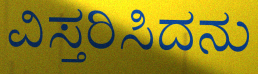
ವಿಸ್ತರಿಸಿದನು